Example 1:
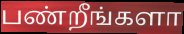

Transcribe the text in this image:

பண்றீங்களா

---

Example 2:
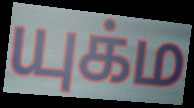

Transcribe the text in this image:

யுக்ம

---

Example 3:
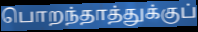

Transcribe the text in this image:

பொறந்தாத்துக்குப்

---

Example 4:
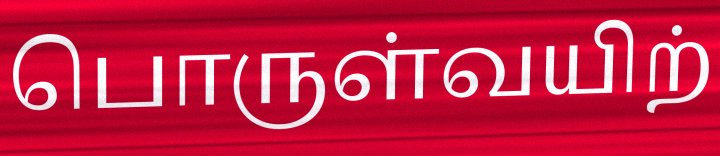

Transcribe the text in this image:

பொருள்வயிற்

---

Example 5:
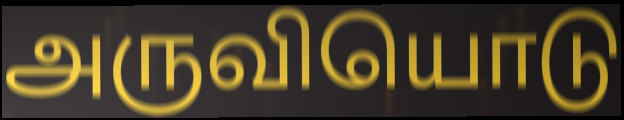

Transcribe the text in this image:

அருவியொடு